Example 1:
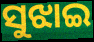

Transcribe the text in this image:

ସୁଝାଇ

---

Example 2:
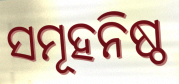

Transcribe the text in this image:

ସମୂହନିଷ୍ଠ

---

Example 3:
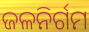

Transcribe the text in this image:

ଜଳନିର୍ଗମ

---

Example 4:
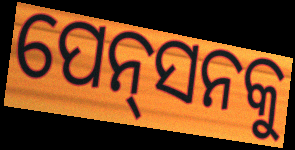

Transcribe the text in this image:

ପେନ୍‌ସନକୁ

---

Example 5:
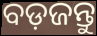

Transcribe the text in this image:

ବଡ଼ଜନ୍ତୁ